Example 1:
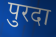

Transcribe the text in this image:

पुरदा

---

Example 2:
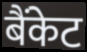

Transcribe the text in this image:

बैंकेट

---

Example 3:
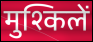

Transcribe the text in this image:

मुश्किलें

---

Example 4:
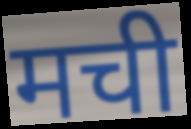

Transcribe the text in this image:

मची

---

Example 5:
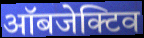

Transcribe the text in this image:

ऑबजेक्टिव